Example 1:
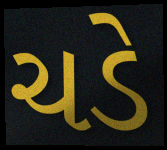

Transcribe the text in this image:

ચડે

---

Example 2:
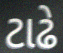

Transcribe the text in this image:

ટાઢે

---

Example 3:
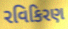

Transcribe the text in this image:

રવિકિરણ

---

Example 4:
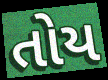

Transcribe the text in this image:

તોય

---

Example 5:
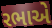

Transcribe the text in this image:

રભાએ